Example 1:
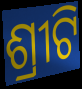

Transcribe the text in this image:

ଶ୍ରୀଟି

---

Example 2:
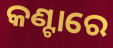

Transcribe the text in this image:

କଣ୍ଟାରେ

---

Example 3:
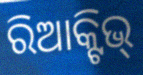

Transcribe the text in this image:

ରିଆକ୍ଟିଭ୍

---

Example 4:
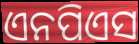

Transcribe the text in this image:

ଏନପିଏସ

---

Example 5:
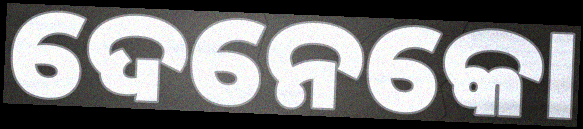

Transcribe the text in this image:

ଦେନେକୋ